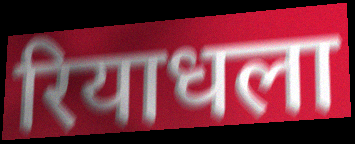
रियाधला